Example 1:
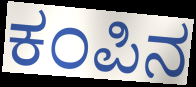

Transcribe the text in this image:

ಕಂಪಿನ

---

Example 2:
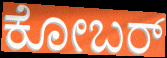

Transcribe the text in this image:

ಕೋಬರ್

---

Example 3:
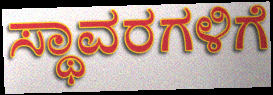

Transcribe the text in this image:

ಸ್ಥಾವರಗಳಿಗೆ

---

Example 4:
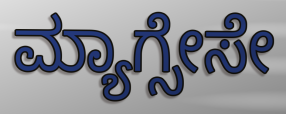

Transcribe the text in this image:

ಮ್ಯಾಗ್ಸೇಸೇ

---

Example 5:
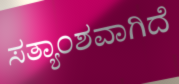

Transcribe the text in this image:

ಸತ್ಯಾಂಶವಾಗಿದೆ